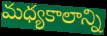
మధ్యకాలాన్ని